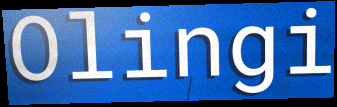
Olingi